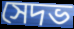
সেদভ